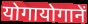
योगायोगानें